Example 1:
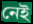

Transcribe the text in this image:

নেই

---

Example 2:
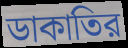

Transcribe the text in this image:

ডাকাতির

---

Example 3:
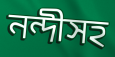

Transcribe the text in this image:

নন্দীসহ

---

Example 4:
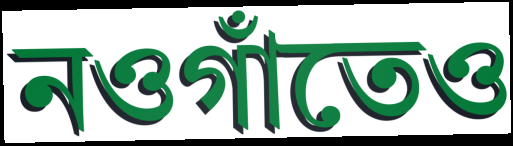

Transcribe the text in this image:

নওগাঁতেও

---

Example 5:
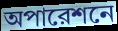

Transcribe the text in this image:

অপারেশনে